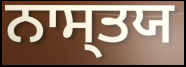
ਨਾਸ੍ਤਯ